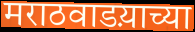
मराठवाडय़ाच्या